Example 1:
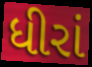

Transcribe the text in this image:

ધીરાં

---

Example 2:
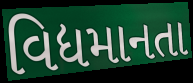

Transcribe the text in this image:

વિદ્યમાનતા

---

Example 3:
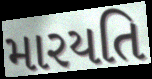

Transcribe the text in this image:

મારયતિ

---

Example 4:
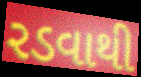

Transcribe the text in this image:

રડવાથી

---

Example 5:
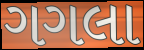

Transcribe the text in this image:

ગગલા